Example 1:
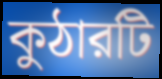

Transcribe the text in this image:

কুঠারটি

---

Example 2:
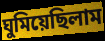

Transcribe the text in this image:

ঘুমিয়েছিলাম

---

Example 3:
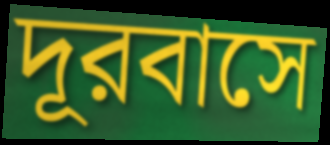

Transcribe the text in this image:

দূরবাসে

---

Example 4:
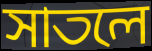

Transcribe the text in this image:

সাতলে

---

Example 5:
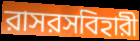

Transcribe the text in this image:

রাসরসবিহারী